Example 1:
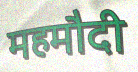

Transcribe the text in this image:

महमौदी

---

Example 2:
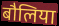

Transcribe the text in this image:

बौलिया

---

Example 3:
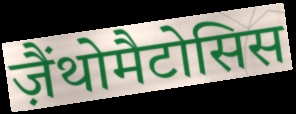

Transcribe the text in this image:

ज़ैंथोमैटोसिस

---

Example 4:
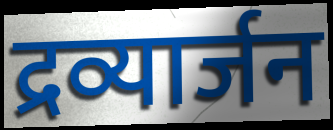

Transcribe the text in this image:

द्रव्यार्जन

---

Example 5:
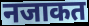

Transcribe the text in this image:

नजाकत